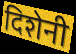
दिशेनी